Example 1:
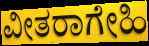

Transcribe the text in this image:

ವೀತರಾಗೇಹಿ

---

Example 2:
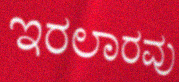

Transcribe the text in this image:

ಇರಲಾರವು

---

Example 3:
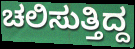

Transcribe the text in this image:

ಚಲಿಸುತ್ತಿದ್ದ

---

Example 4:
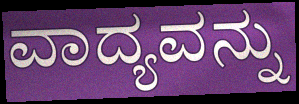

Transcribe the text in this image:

ವಾದ್ಯವನ್ನು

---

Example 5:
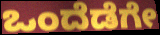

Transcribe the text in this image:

ಒಂದೆಡೆಗೇ